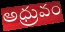
అధ్రువం